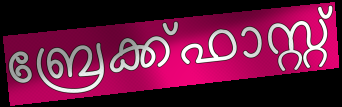
ബ്രേക്ക്ഫാസ്റ്റ്